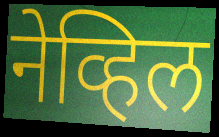
नेव्हिल